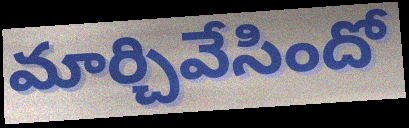
మార్చివేసిందో